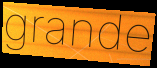
grande